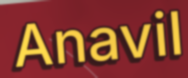
Anavil